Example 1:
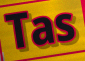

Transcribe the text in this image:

Tas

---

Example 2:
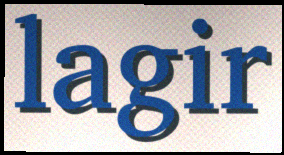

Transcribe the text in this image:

lagir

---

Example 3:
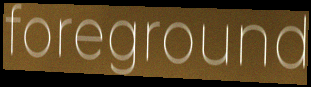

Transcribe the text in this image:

foreground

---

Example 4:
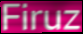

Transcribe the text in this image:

Firuz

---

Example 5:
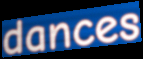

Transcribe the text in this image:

dances